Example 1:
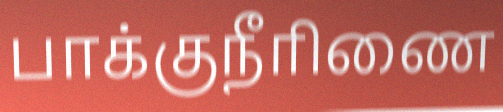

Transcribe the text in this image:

பாக்குநீரிணை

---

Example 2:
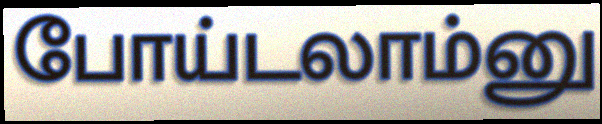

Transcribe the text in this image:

போய்டலாம்னு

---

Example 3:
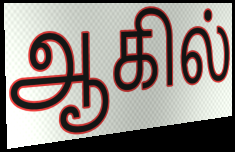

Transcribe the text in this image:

ஆகில்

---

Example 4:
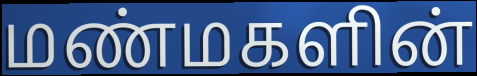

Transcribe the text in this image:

மண்மகளின்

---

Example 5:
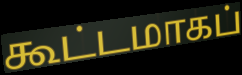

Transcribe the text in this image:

கூட்டமாகப்